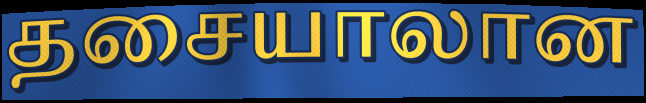
தசையாலான